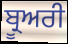
ਬ੍ਰੂਅਰੀ